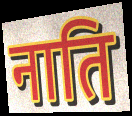
नाति